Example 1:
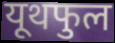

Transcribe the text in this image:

यूथफुल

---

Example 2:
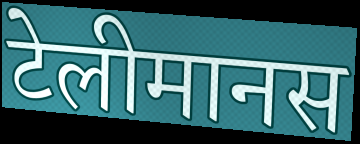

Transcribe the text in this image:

टेलीमानस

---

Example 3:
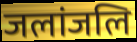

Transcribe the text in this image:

जलांजलि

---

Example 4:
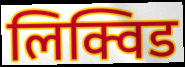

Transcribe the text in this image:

लिक्विड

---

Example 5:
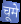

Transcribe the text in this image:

चूमे